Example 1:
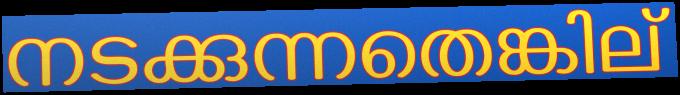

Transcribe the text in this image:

നടക്കുന്നതെങ്കില്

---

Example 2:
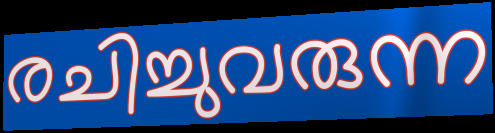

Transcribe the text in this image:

രചിച്ചുവരുന്ന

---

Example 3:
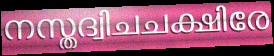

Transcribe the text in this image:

നസ്തദ്വിചചക്ഷിരേ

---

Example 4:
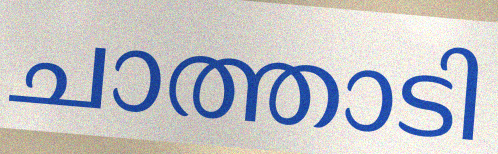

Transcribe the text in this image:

ചാത്താടി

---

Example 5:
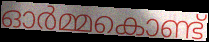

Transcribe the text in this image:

ഓർമ്മകൊണ്ട്